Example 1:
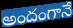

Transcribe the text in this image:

అందంగానే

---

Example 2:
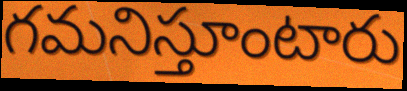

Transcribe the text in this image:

గమనిస్తూంటారు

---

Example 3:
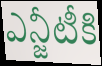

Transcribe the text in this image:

ఎన్జీటీకి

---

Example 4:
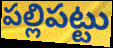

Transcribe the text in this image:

పల్లిపట్టు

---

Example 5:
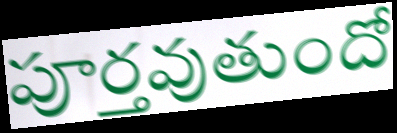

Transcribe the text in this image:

పూర్తవుతుందో